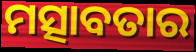
ମତ୍ସାବତାର